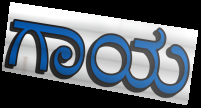
ಗಾಯ